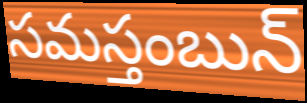
సమస్తంబున్